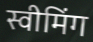
स्वीमिंग